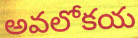
అవలోకయ